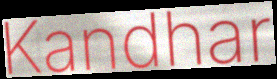
Kandhar